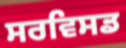
ਸਰਵਿਸਡ